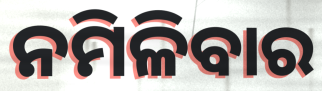
ନମିଳିବାର